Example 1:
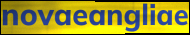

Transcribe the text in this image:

novaeangliae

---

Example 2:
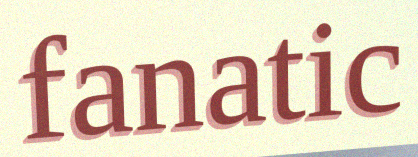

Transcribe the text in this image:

fanatic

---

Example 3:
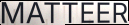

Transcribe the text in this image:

MATTEER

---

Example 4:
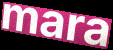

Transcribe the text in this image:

mara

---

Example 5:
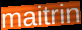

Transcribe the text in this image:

maitrin